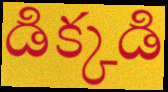
డిక్కడి